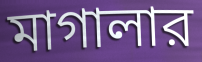
মাগালার